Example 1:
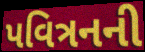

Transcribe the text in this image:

પવિત્રનની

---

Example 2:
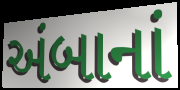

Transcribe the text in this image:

અંબાનાં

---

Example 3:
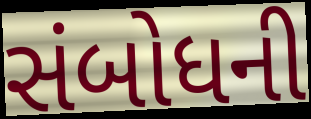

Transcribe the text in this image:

સંબોધની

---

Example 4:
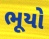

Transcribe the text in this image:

ભૂયો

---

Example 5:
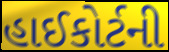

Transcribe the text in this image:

હાઈકોર્ટની